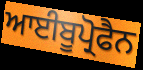
ਆਈਬੂਪ੍ਰੋਫੈਨ